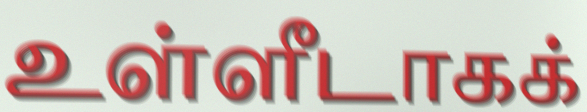
உள்ளீடாகக்